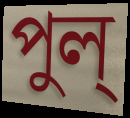
পুল্